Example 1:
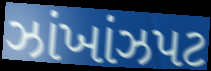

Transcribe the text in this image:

ઝાંખાંઝપટ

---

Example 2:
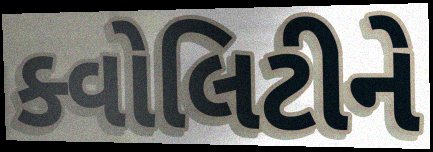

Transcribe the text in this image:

ક્વોલિટીને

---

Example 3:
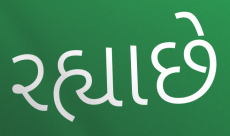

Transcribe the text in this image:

રહ્યાછે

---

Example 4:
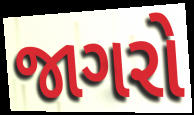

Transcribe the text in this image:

જાગરો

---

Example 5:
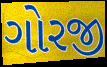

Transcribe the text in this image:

ગોરજી